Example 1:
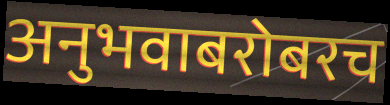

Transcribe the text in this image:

अनुभवाबरोबरच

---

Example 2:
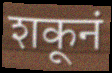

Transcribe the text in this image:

शकूनं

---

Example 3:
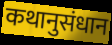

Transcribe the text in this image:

कथानुसंधान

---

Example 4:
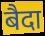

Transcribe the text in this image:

बैदा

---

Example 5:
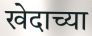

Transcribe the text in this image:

खेदाच्या